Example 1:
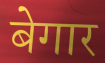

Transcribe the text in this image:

बेगार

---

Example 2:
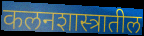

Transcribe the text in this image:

कलनशास्त्रातील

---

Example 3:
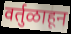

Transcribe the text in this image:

वर्तुळाहून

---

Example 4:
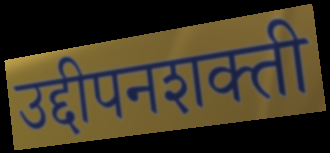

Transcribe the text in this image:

उद्दीपनशक्ती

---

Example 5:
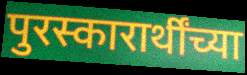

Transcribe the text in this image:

पुरस्कारार्थींच्या